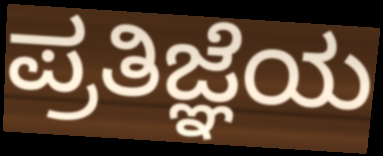
ಪ್ರತಿಜ್ಞೆಯ